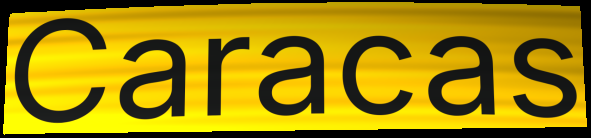
Caracas